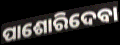
ପାଶୋରିଦେବା